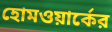
হোমওয়ার্কের